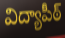
విద్యాపీఠ్